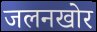
जलनखोर